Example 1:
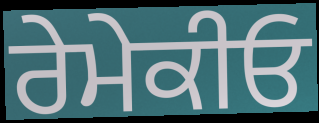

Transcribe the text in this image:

ਰੇਮੇਕੀਓ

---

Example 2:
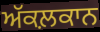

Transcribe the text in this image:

ਅੱਕਲ਼ਕਾਨ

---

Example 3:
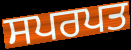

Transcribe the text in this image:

ਸਪਰਪਤ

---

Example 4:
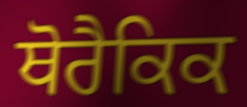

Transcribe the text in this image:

ਥੋਰੈਕਿਕ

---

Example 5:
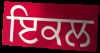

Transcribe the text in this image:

ਇਕਲ